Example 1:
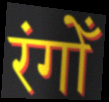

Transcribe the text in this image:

रंगोँ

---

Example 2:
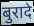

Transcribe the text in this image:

बुरादे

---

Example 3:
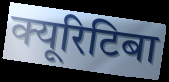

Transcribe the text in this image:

क्यूरिटिबा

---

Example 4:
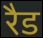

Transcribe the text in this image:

रैड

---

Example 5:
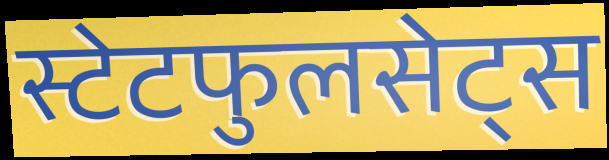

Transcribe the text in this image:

स्टेटफुलसेट्स